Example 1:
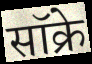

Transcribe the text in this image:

सॉक्रे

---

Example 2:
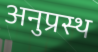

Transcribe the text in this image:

अनुप्रस्थ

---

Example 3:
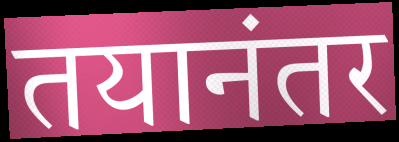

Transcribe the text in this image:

तयानंतर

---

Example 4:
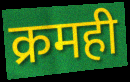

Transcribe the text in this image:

क्रमही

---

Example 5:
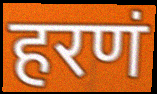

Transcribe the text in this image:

हरणं